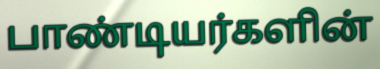
பாண்டியர்களின்